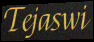
Tejaswi